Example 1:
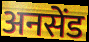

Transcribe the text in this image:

अनसेंड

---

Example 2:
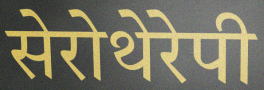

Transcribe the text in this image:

सेरोथेरेपी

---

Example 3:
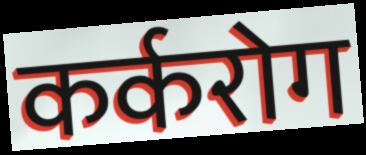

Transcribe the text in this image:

कर्करोग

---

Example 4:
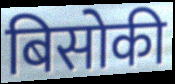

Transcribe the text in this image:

बिसोकी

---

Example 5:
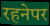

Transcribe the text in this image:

रहनेपर